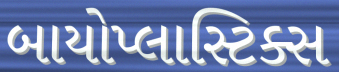
બાયોપ્લાસ્ટિક્સ